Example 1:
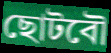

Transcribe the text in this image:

ছোটবৌ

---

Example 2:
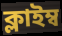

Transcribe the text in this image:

ক্লাইম্ব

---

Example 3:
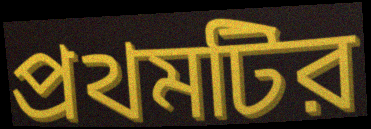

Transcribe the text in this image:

প্রথমটির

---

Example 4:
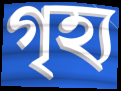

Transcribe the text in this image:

গৃহ্য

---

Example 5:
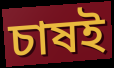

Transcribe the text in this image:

চাষই